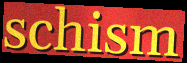
schism